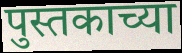
पुस्तकाच्या